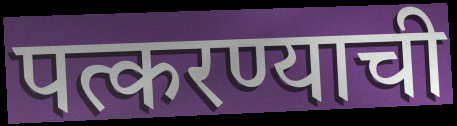
पत्करण्याची